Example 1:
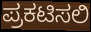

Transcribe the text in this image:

ಪ್ರಕಟಿಸಲಿ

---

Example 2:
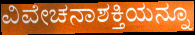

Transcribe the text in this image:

ವಿವೇಚನಾಶಕ್ತಿಯನ್ನೂ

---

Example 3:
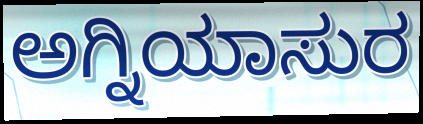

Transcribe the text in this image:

ಅಗ್ನಿಯಾಸುರ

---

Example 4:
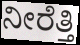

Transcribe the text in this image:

ನೀರೆತ್ತಿ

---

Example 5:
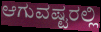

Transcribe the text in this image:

ಆಗುವಷ್ಟರಲ್ಲಿ